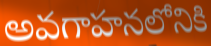
అవగాహనలోనికి